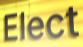
Elect